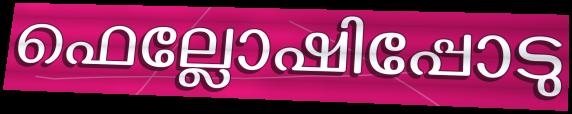
ഫെല്ലോഷിപ്പോടു